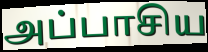
அப்பாசிய